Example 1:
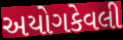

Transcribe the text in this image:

અયોગકેવલી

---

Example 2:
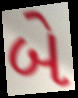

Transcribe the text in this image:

બે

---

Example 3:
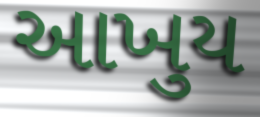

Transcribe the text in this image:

આખુય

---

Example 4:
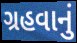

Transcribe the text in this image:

ગ્રહવાનું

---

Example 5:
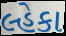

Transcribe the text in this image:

લ્હેકા